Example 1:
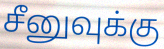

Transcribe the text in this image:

சீனுவுக்கு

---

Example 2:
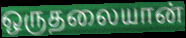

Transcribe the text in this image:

ஒருதலையான்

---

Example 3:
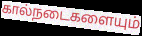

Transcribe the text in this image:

கால்நடைகளையும்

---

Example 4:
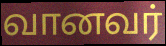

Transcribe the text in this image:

வானவர்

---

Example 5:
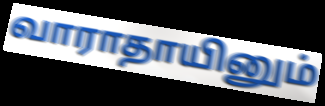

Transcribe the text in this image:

வாராதாயினும்